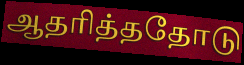
ஆதரித்ததோடு